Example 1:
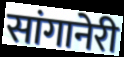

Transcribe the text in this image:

सांगानेरी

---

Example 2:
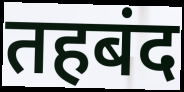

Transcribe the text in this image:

तहबंद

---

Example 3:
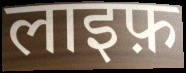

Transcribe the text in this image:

लाइफ़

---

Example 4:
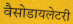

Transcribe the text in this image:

वैसोडायलेटरी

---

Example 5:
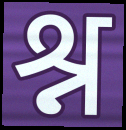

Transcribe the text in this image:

श्न